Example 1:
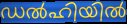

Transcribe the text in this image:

ഡൽഹിയിൽ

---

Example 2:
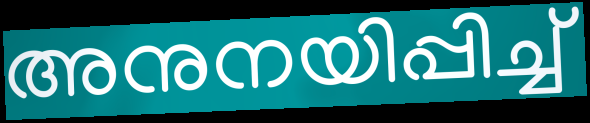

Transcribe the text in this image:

അനുനയിപ്പിച്ച്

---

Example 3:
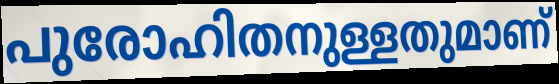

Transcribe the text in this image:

പുരോഹിതനുള്ളതുമാണ്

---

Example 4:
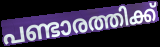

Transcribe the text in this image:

പണ്ടാരത്തിക്ക്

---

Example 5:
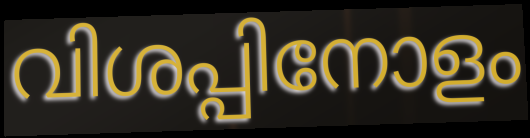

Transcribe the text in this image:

വിശപ്പിനോളം